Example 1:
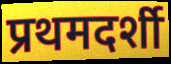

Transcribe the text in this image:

प्रथमदर्शी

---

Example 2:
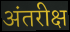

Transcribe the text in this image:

अंतरीक्ष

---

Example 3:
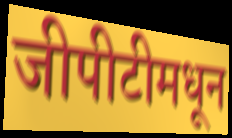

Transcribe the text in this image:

जीपीटीमधून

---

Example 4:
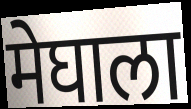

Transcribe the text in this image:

मेघाला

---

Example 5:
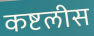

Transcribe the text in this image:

कष्टलीस